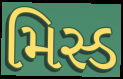
મિસ્ડ